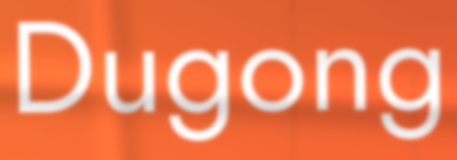
Dugong